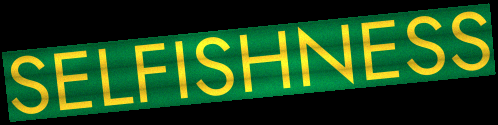
SELFISHNESS